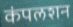
कंपलशन